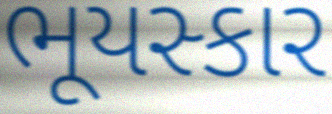
ભૂયસ્કાર